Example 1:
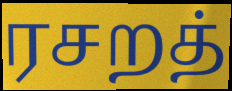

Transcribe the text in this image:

ரசறத்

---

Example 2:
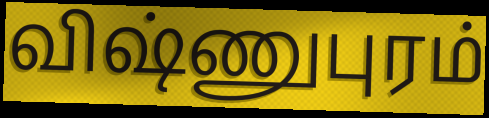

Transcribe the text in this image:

விஷ்ணுபுரம்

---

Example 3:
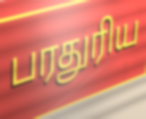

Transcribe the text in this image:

பரதுரிய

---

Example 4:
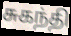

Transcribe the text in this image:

சுகந்தி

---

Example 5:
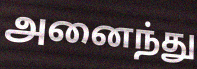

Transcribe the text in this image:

அனைந்து